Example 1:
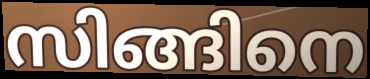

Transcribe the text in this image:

സിങ്ങിനെ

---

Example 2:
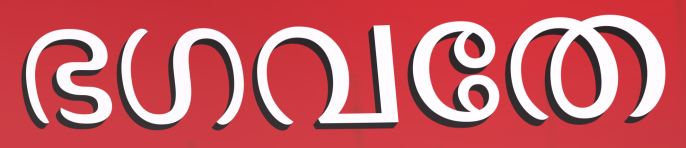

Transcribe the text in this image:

ഭഗവതേ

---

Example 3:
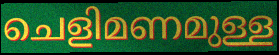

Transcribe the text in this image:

ചെളിമണമുള്ള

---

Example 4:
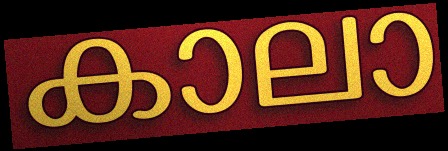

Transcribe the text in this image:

കാലാ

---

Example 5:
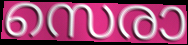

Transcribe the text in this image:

സെരാ